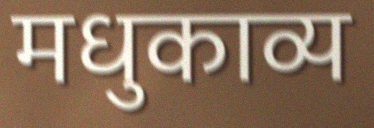
मधुकाव्य